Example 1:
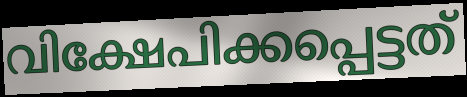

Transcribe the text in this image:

വിക്ഷേപിക്കപ്പെട്ടത്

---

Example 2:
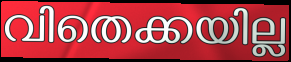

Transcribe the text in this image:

വിതെക്കയില്ല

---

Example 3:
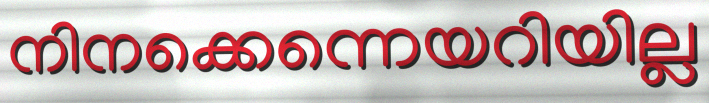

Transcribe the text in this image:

നിനക്കെന്നെയറിയില്ല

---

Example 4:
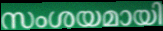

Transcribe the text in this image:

സംശയമായി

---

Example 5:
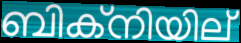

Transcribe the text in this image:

ബിക്നിയില്